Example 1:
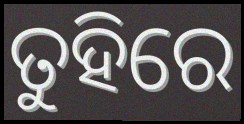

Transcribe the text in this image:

ତୁହିରେ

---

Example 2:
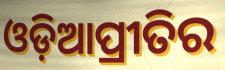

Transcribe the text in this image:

ଓଡ଼ିଆପ୍ରୀତିର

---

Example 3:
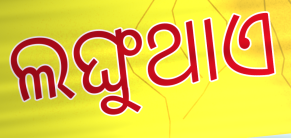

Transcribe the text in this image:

ଲଙ୍ଘୁଥାଏ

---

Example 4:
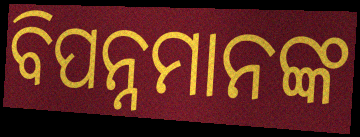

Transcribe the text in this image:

ବିପନ୍ନମାନଙ୍କ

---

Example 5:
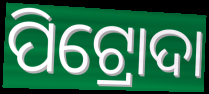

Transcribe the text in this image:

ପିଟ୍ରୋଦା